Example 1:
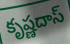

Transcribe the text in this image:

కృష్ణదాస్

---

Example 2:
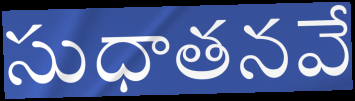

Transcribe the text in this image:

సుధాతనవే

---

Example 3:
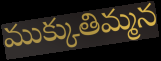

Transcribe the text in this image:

ముక్కుతిమ్మన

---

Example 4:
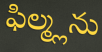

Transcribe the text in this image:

ఫిల్మ్లను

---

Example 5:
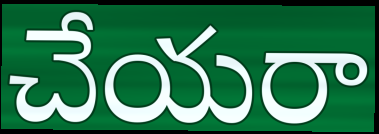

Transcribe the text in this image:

చేయరా